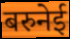
बरुनेई